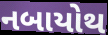
નબાયોથ